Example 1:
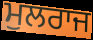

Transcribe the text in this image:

ਮੁਲਰਾਜ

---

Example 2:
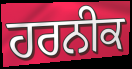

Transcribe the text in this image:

ਹਰਨੀਕ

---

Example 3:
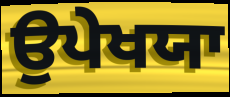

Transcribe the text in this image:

ਉਪੇਖਯਾ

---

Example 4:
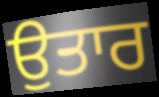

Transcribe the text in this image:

ਉਤਾਰ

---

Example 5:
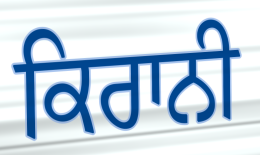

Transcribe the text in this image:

ਕਿਰਾਨੀ